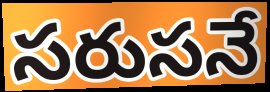
సరుసనే